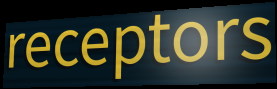
receptors